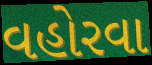
વહોરવા